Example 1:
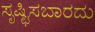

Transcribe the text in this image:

ಸೃಷ್ಟಿಸಬಾರದು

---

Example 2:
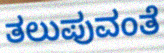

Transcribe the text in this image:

ತಲುಪುವಂತೆ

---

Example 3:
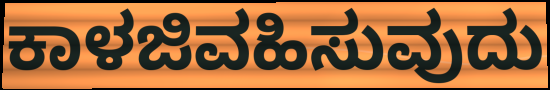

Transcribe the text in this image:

ಕಾಳಜಿವಹಿಸುವುದು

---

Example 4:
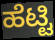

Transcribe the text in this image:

ಹೆಟ್ಟಿ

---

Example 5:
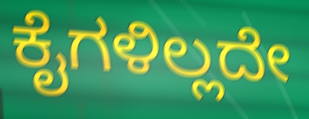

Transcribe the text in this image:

ಕೈಗಳಿಲ್ಲದೇ